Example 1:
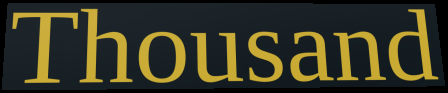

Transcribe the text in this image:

Thousand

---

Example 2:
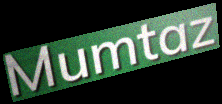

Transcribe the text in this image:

Mumtaz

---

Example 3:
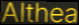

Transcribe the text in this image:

Althea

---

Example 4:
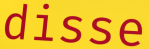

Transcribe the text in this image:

disse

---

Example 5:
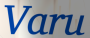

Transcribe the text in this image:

Varu